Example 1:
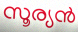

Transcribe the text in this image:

സൂര്യൻ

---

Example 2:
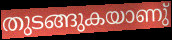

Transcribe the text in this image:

തുടങ്ങുകയാണു്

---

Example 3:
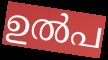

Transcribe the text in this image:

ഉൽപ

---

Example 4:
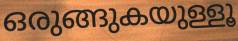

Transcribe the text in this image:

ഒരുങ്ങുകയുള്ളൂ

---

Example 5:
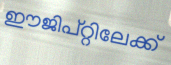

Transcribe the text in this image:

ഈജിപ്റ്റിലേക്ക്